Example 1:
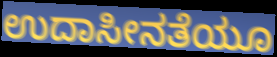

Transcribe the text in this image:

ಉದಾಸೀನತೆಯೂ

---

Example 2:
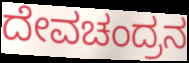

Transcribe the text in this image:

ದೇವಚಂದ್ರನ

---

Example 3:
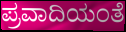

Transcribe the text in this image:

ಪ್ರವಾದಿಯಂತೆ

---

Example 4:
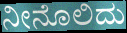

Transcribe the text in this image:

ನೀನೊಲಿದು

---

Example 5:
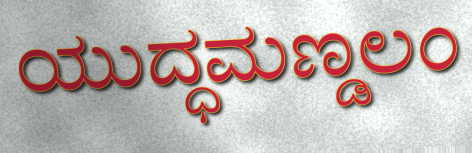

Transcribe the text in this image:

ಯುದ್ಧಮಣ್ಡಲಂ